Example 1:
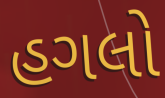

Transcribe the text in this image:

હગલો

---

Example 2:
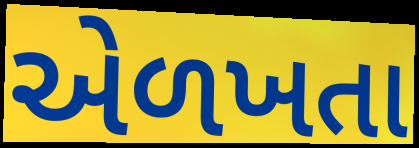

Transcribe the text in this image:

એળખતા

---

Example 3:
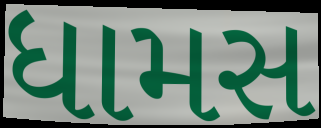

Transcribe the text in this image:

ધામસ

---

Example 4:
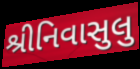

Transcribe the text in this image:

શ્રીનિવાસુલુ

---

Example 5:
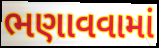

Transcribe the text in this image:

ભણાવવામાં